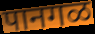
पानगळ